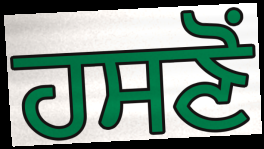
ਹਸਣੋਂ